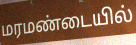
மரமண்டையில்